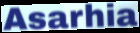
Asarhia